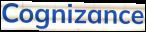
Cognizance